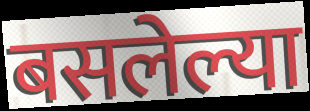
बसलेल्या